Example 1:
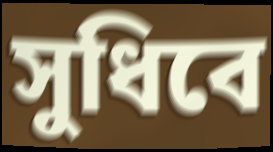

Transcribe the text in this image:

সুধিবে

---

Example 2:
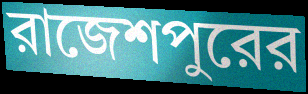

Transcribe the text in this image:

রাজেশপুরের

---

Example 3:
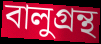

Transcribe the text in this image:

বালুগ্রন্থ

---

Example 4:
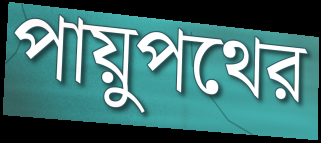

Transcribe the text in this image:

পায়ুপথের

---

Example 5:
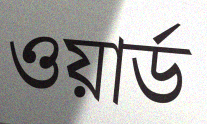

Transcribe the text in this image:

ওয়ার্ড